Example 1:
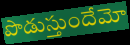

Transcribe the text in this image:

పొడుస్తుందేమో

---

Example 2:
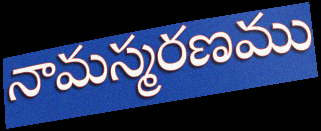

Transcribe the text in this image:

నామస్మరణము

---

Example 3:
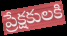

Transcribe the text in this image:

ప్రేక్షకులకి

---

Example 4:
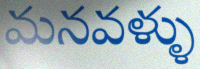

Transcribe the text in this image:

మనవళ్ళు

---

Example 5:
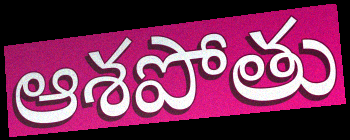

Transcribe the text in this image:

ఆశపోతు